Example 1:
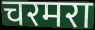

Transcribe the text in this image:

चरमरा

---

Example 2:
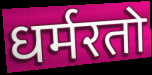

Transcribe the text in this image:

धर्मरतो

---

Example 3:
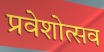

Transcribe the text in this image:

प्रवेशोत्सव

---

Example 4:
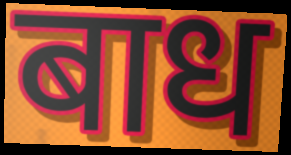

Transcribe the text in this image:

बाध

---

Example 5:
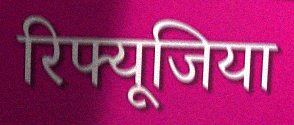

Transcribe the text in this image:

रिफ्यूजिया